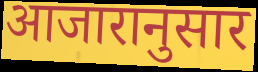
आजारानुसार